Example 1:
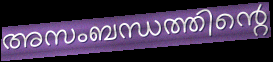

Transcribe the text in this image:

അസംബന്ധത്തിന്റെ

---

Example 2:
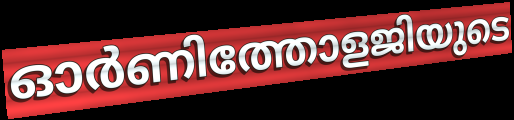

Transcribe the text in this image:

ഓർണിത്തോളജിയുടെ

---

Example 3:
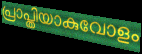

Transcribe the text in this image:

പ്രാപ്തിയാകുവോളം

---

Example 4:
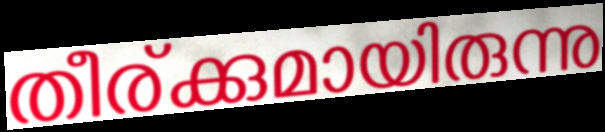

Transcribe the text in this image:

തീര്ക്കുമായിരുന്നു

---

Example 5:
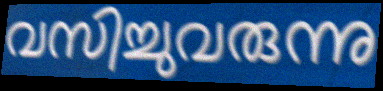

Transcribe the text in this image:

വസിച്ചുവരുന്നു